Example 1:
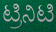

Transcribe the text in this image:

ಟ್ರಿನಿಟಿ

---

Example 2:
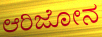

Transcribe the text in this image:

ಆರಿಜೋನ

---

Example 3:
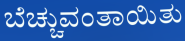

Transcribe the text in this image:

ಬೆಚ್ಚುವಂತಾಯಿತು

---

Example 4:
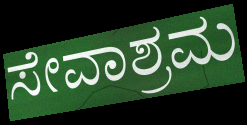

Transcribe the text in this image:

ಸೇವಾಶ್ರಮ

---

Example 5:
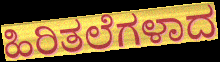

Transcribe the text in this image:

ಹಿರಿತಲೆಗಳಾದ